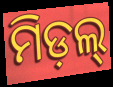
ମିଡ଼ଲ୍